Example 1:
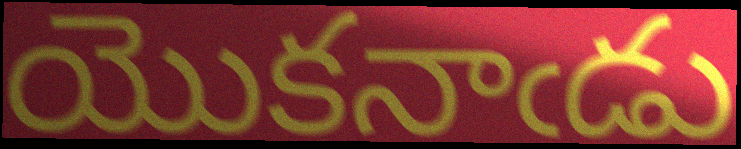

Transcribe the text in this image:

యొకనాఁడు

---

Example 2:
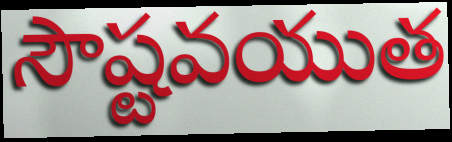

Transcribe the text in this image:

సౌష్టవయుత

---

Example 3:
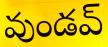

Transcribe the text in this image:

వుండవ్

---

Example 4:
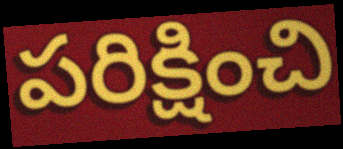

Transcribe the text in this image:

పరిక్షించి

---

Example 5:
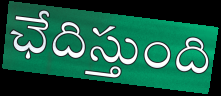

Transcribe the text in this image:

ఛేదిస్తుంది